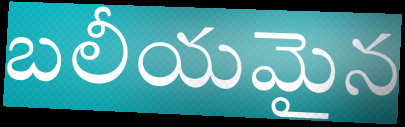
బలీయమైన